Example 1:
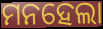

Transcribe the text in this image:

ମନହେଲା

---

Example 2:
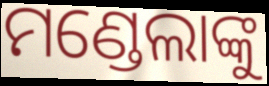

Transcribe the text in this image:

ମଣ୍ଡେଲାଙ୍କୁ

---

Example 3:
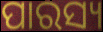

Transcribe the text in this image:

ପାରସ୍ୟ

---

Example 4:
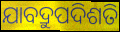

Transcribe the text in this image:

ଯାବଦ୍ରୁପଦିଶତି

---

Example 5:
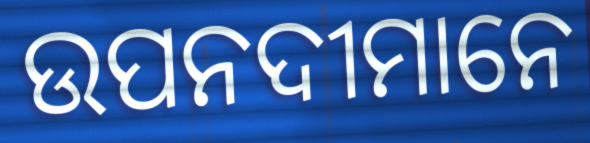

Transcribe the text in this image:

ଉପନଦୀମାନେ